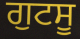
ਗੁਟਸੂ